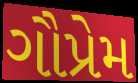
ગૌપ્રેમ